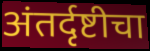
अंतर्दृष्टीचा